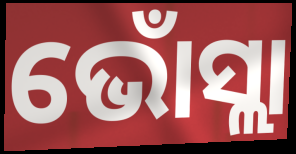
ଭୋଁସ୍ଲା